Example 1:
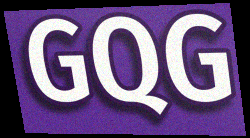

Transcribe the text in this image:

GQG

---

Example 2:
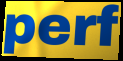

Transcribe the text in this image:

perf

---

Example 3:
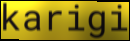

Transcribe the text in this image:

karigi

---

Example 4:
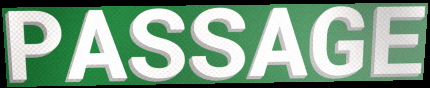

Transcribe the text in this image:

PASSAGE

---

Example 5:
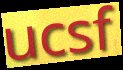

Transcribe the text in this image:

ucsf